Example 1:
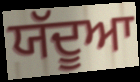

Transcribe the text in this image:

ਯੱਦੂਆ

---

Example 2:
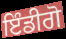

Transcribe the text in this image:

ਇੰਡੀਗੋ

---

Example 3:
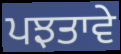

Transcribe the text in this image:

ਪਝਤਾਵੇ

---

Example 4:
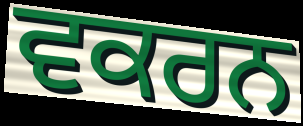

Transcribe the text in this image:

ਵਕਰਨ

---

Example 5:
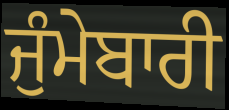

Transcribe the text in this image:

ਜੁੰਮੇਬਾਰੀ